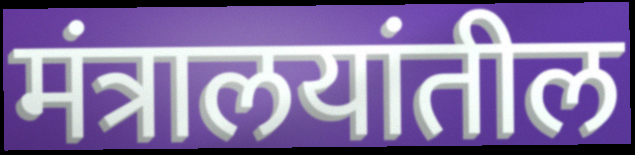
मंत्रालयांतील